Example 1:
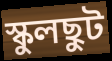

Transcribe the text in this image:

স্কুলছুট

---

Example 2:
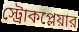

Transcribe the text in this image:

স্ট্রোকপ্লেয়ার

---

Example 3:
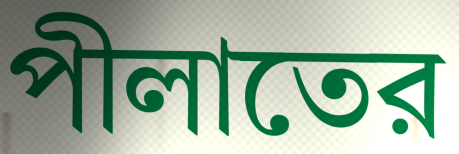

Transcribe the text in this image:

পীলাতের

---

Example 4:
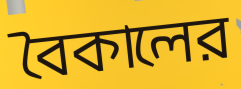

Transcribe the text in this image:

বৈকালের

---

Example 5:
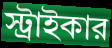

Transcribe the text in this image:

স্ট্রাইকার